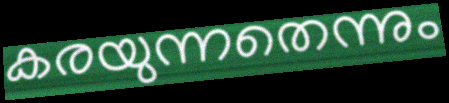
കരയുന്നതെന്നും